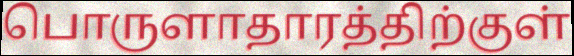
பொருளாதாரத்திற்குள்